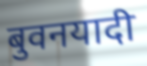
बुवनयादी